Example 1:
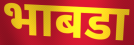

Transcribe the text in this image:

भाबडा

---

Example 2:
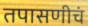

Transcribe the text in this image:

तपासणीचं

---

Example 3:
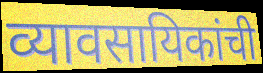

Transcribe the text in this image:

व्यावसायिकांची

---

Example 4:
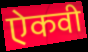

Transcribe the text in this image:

ऐकवी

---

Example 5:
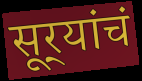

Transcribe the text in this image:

सूर्यांचं